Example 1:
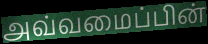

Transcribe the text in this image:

அவ்வமைப்பின்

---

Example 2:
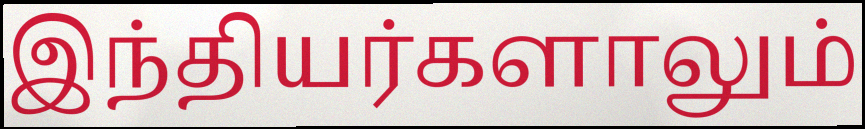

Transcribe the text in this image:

இந்தியர்களாலும்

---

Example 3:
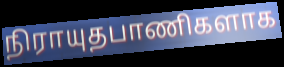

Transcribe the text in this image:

நிராயுதபாணிகளாக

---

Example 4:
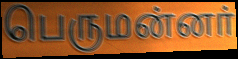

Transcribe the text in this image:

பெருமன்னர்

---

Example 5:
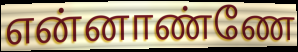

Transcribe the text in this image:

என்னாண்ணே